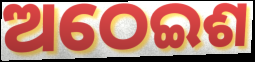
ଅଠେଇଶ